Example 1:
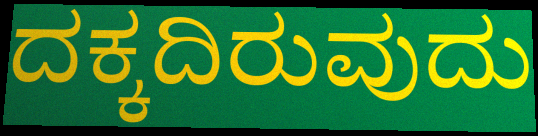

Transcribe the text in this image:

ದಕ್ಕದಿರುವುದು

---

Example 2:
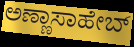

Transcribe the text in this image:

ಅಣ್ಣಾಸಾಹೇಬ್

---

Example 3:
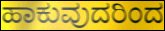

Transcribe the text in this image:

ಹಾಕುವುದರಿಂದ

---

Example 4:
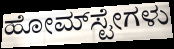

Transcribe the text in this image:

ಹೋಮ್‌ಸ್ಟೇಗಳು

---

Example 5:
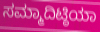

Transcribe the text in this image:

ಸಮ್ಮಾದಿಟ್ಠಿಯಾ